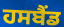
ਹਸਬੈਂਡ